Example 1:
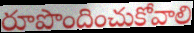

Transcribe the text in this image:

రూపొందించుకోవాలి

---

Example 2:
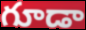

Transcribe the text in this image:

గూడా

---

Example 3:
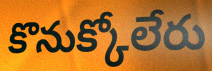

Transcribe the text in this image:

కొనుక్కోలేరు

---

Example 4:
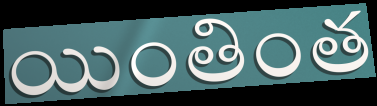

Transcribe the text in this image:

యింతింత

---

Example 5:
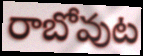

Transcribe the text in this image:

రాబోవుట